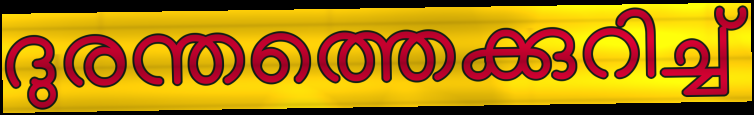
ദുരന്തത്തെക്കുറിച്ച്